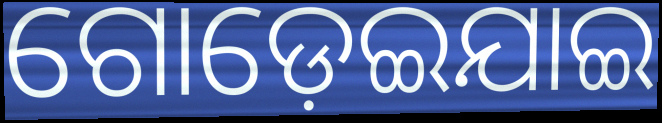
ଗୋଡ଼େଇଯାଇ